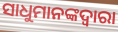
ସାଧୁମାନଙ୍କଦ୍ଵାରା